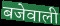
बजेवाली